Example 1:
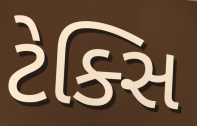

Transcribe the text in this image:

ટેક્સિ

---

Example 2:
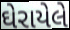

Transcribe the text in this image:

ઘેરાયેલે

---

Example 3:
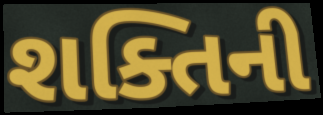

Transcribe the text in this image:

શક્તિની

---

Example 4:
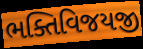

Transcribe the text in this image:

ભક્તિવિજયજી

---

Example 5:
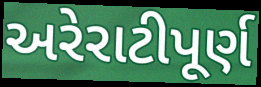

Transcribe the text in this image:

અરેરાટીપૂર્ણ